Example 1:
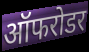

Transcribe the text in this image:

ऑफरोडर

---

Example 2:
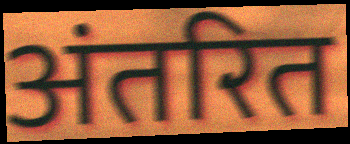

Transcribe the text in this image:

अंतरित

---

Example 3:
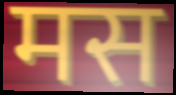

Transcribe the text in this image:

मस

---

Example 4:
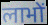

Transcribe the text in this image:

लाभों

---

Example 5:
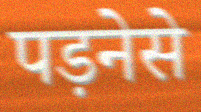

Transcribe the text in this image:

पड़नेसे